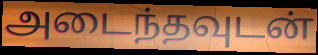
அடைந்தவுடன்